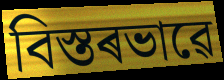
বিস্তৰভাৱে